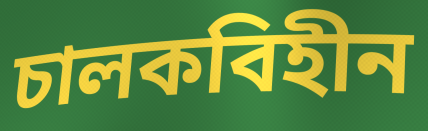
চালকবিহীন